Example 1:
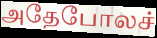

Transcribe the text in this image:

அதேபோலச்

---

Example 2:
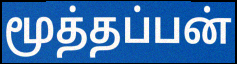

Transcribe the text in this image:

மூத்தப்பன்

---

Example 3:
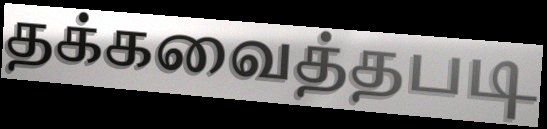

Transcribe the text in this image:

தக்கவைத்தபடி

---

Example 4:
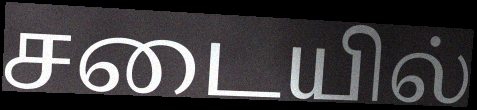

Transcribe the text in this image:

சடையில்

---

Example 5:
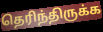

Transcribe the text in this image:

தெரிந்திருக்க